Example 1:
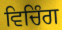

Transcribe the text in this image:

ਵਿਚਿੰਗ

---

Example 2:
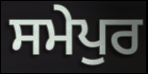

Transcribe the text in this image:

ਸਮੇਪੁਰ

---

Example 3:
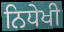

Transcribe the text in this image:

ਨਿਧੇਖੀ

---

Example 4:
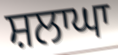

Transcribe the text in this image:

ਸ਼ਲਾਘਾ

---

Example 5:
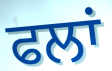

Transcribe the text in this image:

ਫਲਾਂ